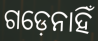
ଗଡ଼େନାହିଁ